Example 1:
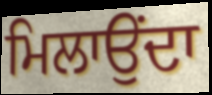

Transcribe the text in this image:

ਮਿਲਾਉਂਦਾ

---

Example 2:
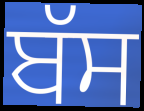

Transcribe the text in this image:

ਬੱਸ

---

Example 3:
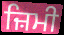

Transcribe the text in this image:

ਜ਼ਿਮੀ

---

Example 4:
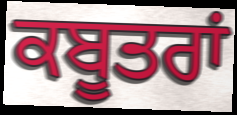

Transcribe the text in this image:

ਕਬੂਤਰਾਂ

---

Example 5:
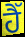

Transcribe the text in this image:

ਹੈੱ